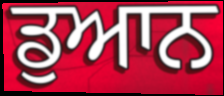
ਡੁਆਨ